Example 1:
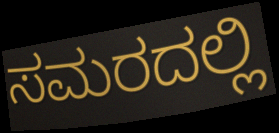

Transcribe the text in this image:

ಸಮರದಲ್ಲಿ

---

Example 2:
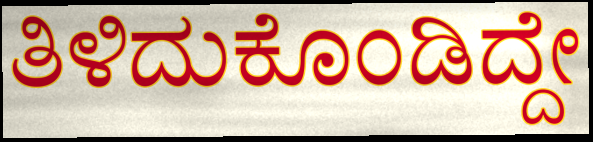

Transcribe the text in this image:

ತಿಳಿದುಕೊಂಡಿದ್ದೇ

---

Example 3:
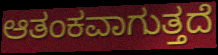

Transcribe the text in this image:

ಆತಂಕವಾಗುತ್ತದೆ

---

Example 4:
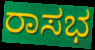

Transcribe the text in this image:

ರಾಸಭ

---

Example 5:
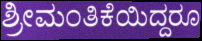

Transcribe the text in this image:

ಶ್ರೀಮಂತಿಕೆಯಿದ್ದರೂ